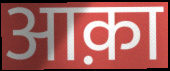
आक़ा